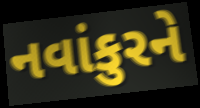
નવાંકુરને